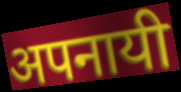
अपनायी